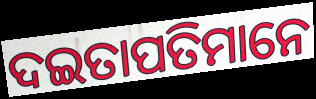
ଦଇତାପତିମାନେ